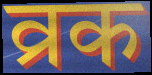
व्रक